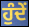
ਹੁੰਦੇਂ